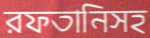
রফতানিসহ